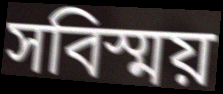
সবিস্ময়